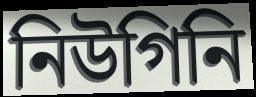
নিউগিনি